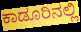
ಕಾಡೂರಿನಲ್ಲಿ